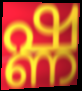
ഷ്ണ